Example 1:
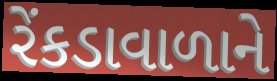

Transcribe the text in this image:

રેંકડાવાળાને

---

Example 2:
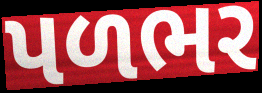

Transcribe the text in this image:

પળભર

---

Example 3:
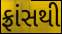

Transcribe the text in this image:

ફ્રાંસથી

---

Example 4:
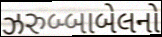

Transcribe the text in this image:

ઝરુબ્બાબેલનો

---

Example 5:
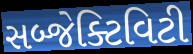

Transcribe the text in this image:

સબ્જેક્ટિવિટી